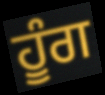
ਹੂੰਗ